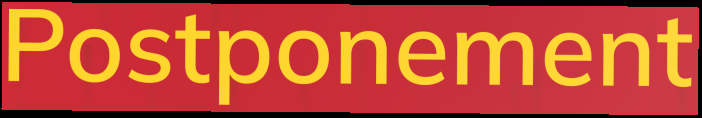
Postponement